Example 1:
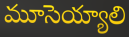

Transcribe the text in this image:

మూసెయ్యాలి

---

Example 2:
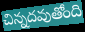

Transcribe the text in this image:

చిన్నదవుతోంది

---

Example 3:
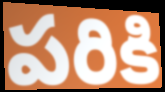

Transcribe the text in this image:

పరికి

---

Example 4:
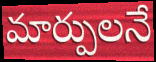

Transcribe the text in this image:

మార్పులనే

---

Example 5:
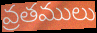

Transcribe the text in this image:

వ్రతములు